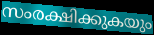
സംരക്ഷിക്കുകയും